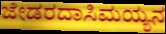
ಜೇಡರದಾಸಿಮಯ್ಯನ